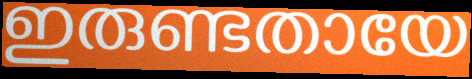
ഇരുണ്ടതായേ